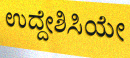
ಉದ್ದೇಶಿಸಿಯೇ